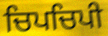
ਚਿਪਚਿਪੀ